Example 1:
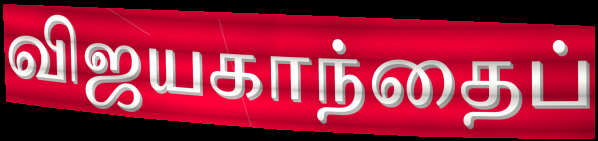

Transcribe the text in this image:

விஜயகாந்தைப்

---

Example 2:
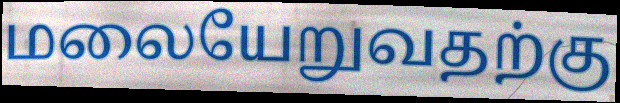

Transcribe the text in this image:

மலையேறுவதற்கு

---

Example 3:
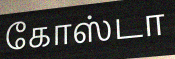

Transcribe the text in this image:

கோஸ்டா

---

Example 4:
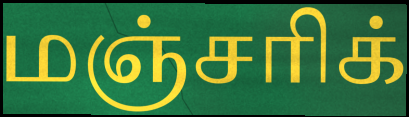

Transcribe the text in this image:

மஞ்சரிக்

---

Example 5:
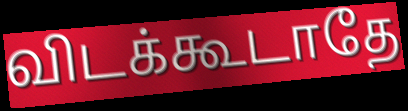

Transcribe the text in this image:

விடக்கூடாதே